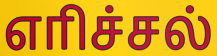
எரிச்சல்